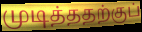
முடித்ததற்குப்